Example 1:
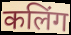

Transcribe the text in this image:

कलिंग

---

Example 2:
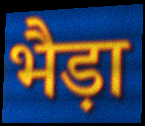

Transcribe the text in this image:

भैड़ा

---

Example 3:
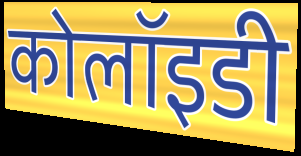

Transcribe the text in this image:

कोलॉइडी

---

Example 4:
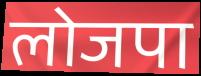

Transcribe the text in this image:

लोजपा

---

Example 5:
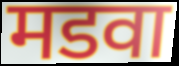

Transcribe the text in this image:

मडवा